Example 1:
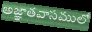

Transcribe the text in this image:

అజ్ఞాతవాసములో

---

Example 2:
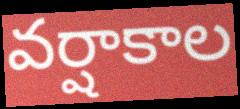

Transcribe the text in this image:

వర్షాకాల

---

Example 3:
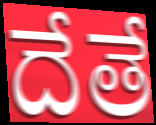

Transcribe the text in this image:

దేతే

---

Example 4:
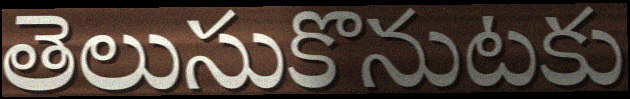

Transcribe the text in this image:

తెలుసుకొనుటకు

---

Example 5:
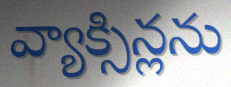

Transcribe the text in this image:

వ్యాక్సిన్లను